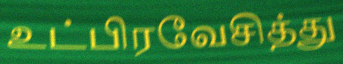
உட்பிரவேசித்து